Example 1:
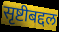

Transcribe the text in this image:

सृष्टीबद्दल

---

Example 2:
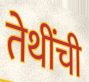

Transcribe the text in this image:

तेथींची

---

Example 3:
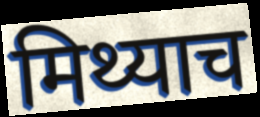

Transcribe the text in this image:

मिथ्याच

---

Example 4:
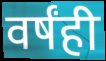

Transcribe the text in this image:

वर्षंही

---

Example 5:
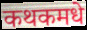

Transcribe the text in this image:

कथकमधे